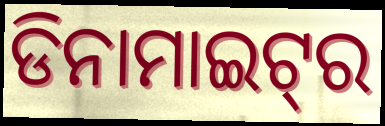
ଡିନାମାଇଟ୍‌ର